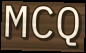
MCQ